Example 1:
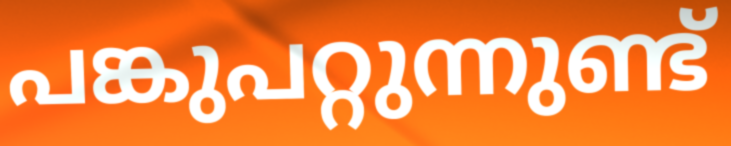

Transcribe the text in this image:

പങ്കുപറ്റുന്നുണ്ട്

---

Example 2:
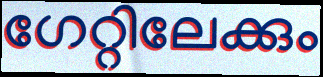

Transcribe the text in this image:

ഗേറ്റിലേക്കും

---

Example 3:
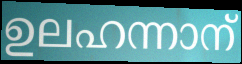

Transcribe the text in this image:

ഉലഹന്നാന്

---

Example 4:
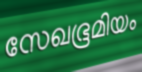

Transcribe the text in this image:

സേഖഭൂമിയം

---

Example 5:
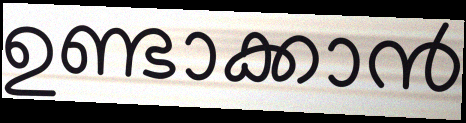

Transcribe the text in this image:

ഉണ്ടാക്കാൻ